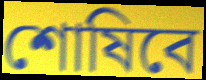
শোষিবে